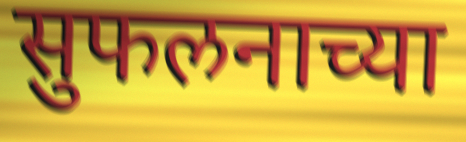
सुफलनाच्या